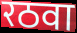
रठवा